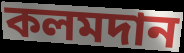
কলমদান